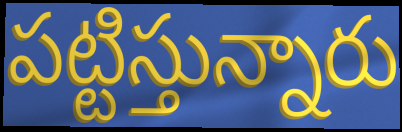
పట్టిస్తున్నారు